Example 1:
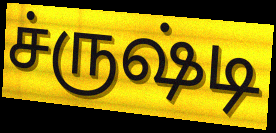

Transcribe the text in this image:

ச்ருஷ்டி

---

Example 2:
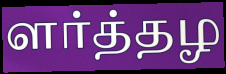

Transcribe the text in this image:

ளர்த்தழ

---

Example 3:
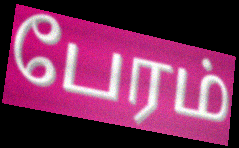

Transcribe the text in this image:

பேரம்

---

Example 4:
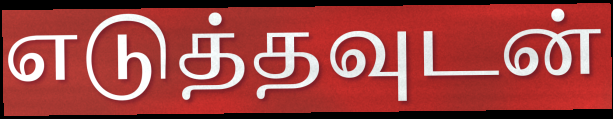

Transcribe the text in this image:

எடுத்தவுடன்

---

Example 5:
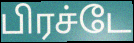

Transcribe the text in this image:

பிரச்டே